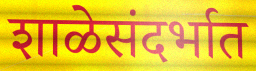
शाळेसंदर्भात